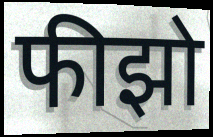
फीझो